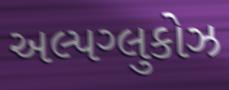
અલ્પગ્લુકોઝ